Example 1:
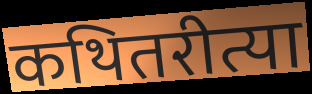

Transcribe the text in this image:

कथितरीत्या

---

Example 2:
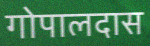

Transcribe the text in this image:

गोपालदास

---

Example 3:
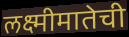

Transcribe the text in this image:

लक्ष्मीमातेची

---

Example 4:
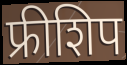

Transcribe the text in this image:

फ्रीशिप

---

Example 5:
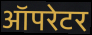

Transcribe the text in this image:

ऑपरेटर